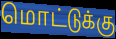
மொட்டுக்கு